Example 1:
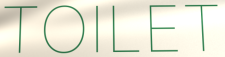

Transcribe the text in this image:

TOILET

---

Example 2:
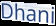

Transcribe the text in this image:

Dhani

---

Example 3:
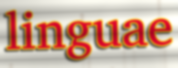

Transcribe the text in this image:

linguae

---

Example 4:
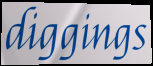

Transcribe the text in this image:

diggings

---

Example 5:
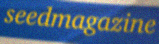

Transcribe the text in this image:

seedmagazine